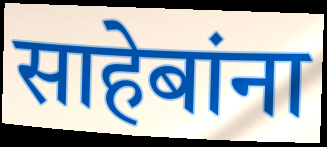
साहेबांना